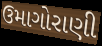
ઉમાગોરાણી